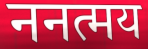
ननत्मय